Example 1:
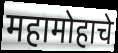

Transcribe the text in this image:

महामोहाचे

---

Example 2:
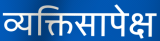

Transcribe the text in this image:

व्यक्तिसापेक्ष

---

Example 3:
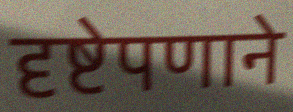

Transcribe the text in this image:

दृष्टेपणाने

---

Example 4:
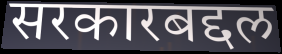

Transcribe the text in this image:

सरकारबद्दल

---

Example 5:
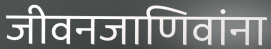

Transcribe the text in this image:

जीवनजाणिवांना